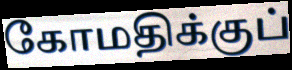
கோமதிக்குப்